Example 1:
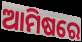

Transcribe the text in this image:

ଆମିଷରେ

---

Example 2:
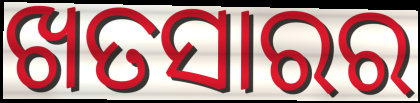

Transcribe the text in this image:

ଖତସାରର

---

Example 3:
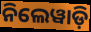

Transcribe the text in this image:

ନିଲେୱାଡ଼ି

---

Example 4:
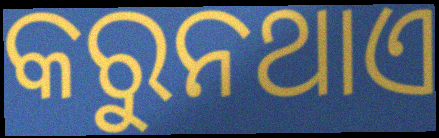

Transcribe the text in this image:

କରୁନଥାଏ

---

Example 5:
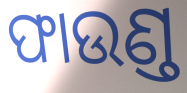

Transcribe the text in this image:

ଫାଉଣ୍ଡ